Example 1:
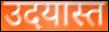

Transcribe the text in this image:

उदयास्त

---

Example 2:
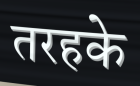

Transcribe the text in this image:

तरहके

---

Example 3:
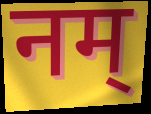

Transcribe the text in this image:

नम्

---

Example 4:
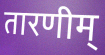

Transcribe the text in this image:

तारणीम्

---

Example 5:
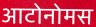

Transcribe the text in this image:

आटोनोमस